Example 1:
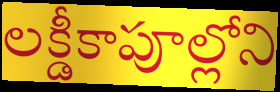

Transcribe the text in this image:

లక్డీకాపూల్లోని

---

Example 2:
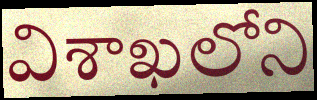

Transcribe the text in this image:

విశాఖలోని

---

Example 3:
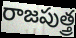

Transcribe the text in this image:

రాజపుత్త్ర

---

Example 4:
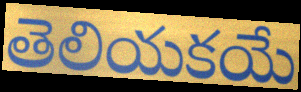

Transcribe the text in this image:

తెలియకయే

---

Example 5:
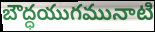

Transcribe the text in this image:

బౌద్ధయుగమునాటి